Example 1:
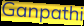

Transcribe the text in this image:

Ganpathi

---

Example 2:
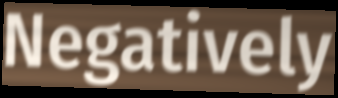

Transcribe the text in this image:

Negatively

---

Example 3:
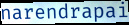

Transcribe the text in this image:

narendrapai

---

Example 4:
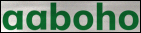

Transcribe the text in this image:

aaboho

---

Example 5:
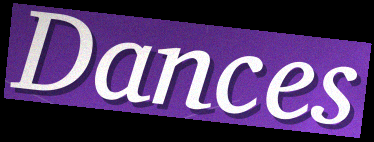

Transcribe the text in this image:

Dances